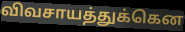
விவசாயத்துக்கென